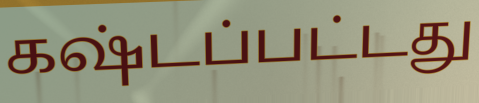
கஷ்டப்பட்டது